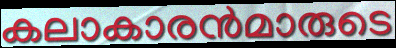
കലാകാരൻമാരുടെ